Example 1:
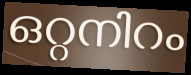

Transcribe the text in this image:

ഒറ്റനിറം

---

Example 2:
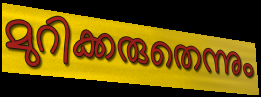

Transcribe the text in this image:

മുറിക്കരുതെന്നും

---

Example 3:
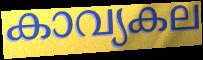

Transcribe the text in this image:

കാവ്യകല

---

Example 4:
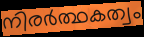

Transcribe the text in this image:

നിരർത്ഥകത്വം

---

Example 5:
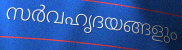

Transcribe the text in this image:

സർവഹൃദയങ്ങളും